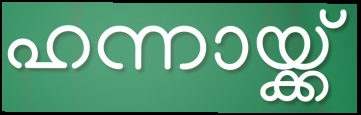
ഹന്നായ്ക്ക്